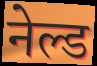
नेल्ड